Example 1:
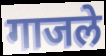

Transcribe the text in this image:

गाजले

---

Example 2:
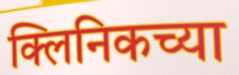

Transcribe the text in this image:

क्लिनिकच्या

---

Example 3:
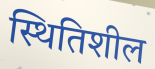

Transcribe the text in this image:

स्थितिशील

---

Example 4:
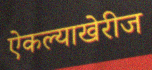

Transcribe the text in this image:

ऐकल्याखेरीज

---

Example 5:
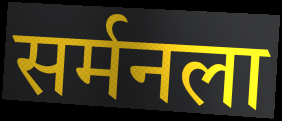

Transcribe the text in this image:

सर्मनला